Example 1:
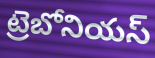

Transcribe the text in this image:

ట్రెబోనియస్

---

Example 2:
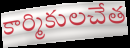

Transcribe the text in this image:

కార్మికులచేత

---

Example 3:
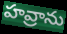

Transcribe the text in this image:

హవ్రాను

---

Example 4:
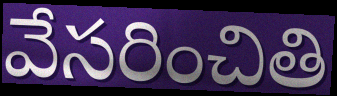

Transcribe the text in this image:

వేసరించితి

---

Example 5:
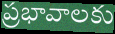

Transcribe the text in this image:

ప్రభావాలకు